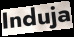
Induja